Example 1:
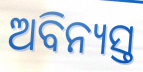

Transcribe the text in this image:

ଅବିନ୍ୟସ୍ତ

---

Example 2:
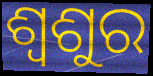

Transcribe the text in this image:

ଶ୍ଵଶୁର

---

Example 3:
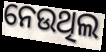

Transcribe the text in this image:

ନେଉଥିଲ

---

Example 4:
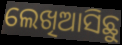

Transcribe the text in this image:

ଲେଖିଆସିଛୁ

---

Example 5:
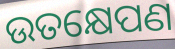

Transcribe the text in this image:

ଉତକ୍ଷେପଣ